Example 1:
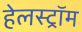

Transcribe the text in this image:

हेलस्ट्रॉम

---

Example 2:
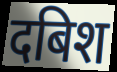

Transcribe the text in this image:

दबिश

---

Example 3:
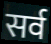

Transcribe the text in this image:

सर्व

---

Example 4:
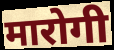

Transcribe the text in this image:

मारोगी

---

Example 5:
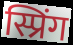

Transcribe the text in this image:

स्प्रिंग